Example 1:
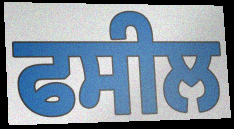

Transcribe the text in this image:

ਫਸੀਲ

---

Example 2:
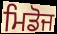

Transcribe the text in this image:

ਮਿਡੋਜ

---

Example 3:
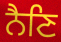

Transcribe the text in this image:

ਨੈਣਿ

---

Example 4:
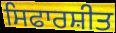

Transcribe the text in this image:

ਸਿਫਾਰਸ਼ੀਤ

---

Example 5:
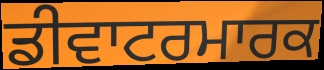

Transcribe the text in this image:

ਡੀਵਾਟਰਮਾਰਕ